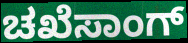
ಚಖೆಸಾಂಗ್